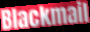
Blackmail